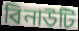
বিনাউটি